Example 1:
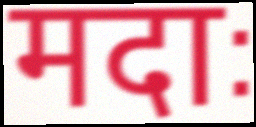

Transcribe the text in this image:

मदाः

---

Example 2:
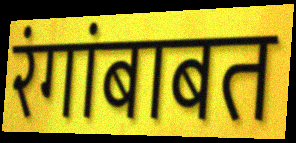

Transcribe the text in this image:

रंगांबाबत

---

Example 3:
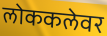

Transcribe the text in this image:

लोककलेवर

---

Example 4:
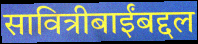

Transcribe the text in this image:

सावित्रीबाईंबद्दल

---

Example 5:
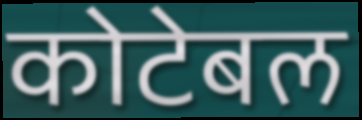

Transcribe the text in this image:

कोटेबल